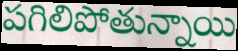
పగిలిపోతున్నాయి